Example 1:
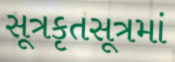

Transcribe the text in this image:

સૂત્રકૃતસૂત્રમાં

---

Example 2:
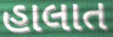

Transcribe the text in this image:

હાલાત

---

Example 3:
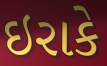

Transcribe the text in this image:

ઇરાકે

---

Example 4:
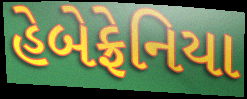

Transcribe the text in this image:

હેબેફ્રેનિયા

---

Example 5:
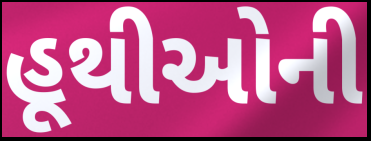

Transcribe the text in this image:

હૂથીઓની